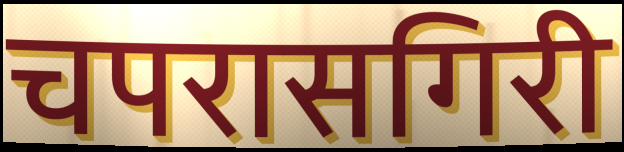
चपरासगिरी